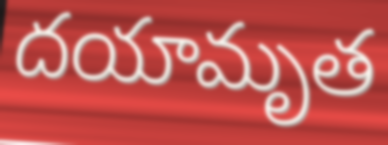
దయామృత